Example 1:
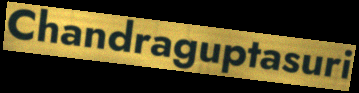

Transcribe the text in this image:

Chandraguptasuri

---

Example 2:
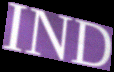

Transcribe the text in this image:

IND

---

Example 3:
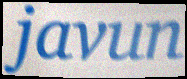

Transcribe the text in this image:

javun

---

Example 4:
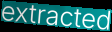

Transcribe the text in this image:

extracted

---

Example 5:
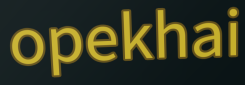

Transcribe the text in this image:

opekhai